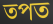
তপত